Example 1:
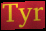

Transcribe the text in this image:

Tyr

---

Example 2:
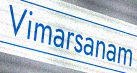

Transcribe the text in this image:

Vimarsanam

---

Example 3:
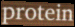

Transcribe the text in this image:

protein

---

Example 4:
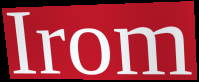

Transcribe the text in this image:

Irom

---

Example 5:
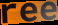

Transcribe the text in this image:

ree